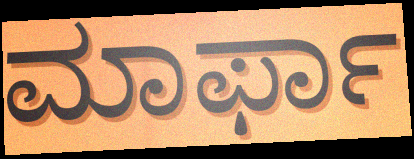
ಮಾರ್ಫಾ